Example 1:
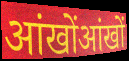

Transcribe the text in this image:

आंखोंआंखों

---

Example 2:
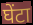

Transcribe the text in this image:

घेंटा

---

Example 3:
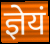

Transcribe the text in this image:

ज्ञेयं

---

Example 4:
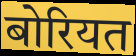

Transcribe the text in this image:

बोरियत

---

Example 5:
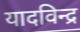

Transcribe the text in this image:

यादविन्द्र